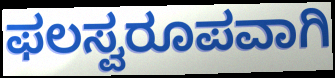
ಫಲಸ್ವರೂಪವಾಗಿ